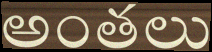
అంతలు